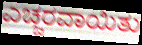
ಎಚ್ಚರವಾಯಿತು